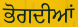
ਭੋਗਦੀਆਂ